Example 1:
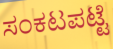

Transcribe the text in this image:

ಸಂಕಟಪಟ್ಟೆ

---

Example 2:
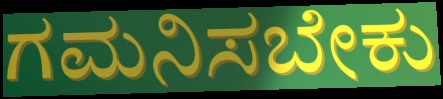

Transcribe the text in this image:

ಗಮನಿಸಬೇಕು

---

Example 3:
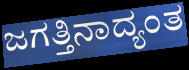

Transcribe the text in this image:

ಜಗತ್ತಿನಾದ್ಯಂತ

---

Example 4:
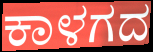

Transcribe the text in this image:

ಕಾಳಗದ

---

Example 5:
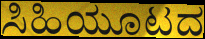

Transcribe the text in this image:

ಸಿಹಿಯೂಟದ